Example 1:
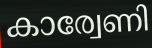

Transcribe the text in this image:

കാര്വേണി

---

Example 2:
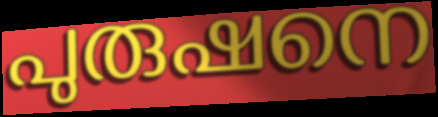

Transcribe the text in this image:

പുരുഷനെ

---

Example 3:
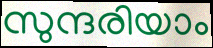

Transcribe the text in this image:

സുന്ദരിയാം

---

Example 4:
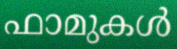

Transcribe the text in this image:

ഫാമുകൾ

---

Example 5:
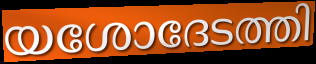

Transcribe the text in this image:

യശോദേടത്തി